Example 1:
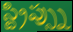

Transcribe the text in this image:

స్ట్రిప్స్ను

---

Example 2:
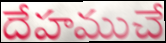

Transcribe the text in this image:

దేహముచే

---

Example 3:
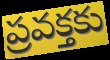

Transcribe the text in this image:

ప్రవక్తకు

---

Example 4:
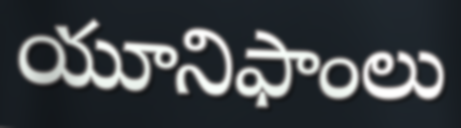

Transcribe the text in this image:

యూనిఫాంలు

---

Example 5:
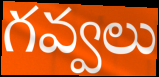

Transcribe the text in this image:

గవ్వలు